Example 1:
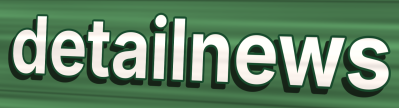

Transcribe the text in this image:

detailnews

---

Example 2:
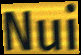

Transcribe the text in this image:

Nui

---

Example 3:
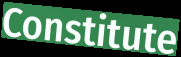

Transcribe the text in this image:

Constitute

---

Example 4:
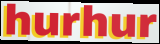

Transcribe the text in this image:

hurhur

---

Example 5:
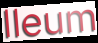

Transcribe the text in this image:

Ileum